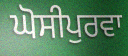
ਘੋਸੀਪੁਰਵਾ